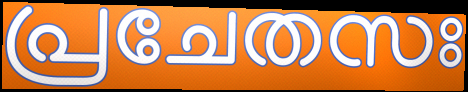
പ്രചേതസഃ